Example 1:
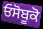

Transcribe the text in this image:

ਓਸੋਬੂਕੋ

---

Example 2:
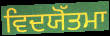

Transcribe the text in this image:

ਵਿਦਯੋੱਤਮਾ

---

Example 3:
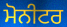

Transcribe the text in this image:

ਮੋਨੀਟਰ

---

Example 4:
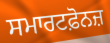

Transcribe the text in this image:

ਸਮਾਰਟਫ਼ੋਨਜ਼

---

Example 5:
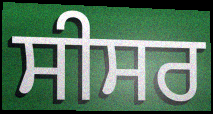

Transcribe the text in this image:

ਸੀਸਰ